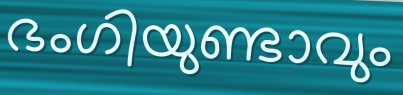
ഭംഗിയുണ്ടാവും